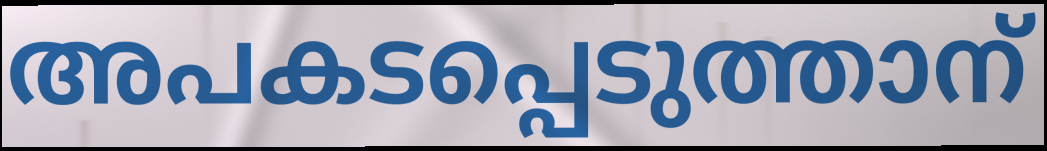
അപകടപ്പെടുത്താന്